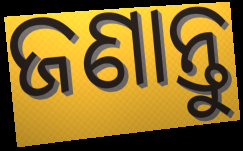
ଜଣାନ୍ତୁ